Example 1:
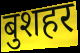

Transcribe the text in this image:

बुशहर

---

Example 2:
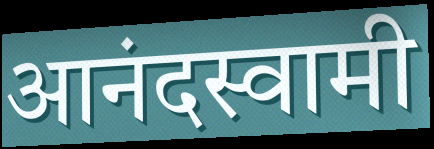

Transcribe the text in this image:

आनंदस्वामी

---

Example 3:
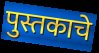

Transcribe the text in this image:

पुस्तकाचे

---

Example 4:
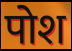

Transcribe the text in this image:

पोश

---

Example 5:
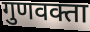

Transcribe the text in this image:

गुणवक्ता